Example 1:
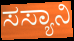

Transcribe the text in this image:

ಸಸ್ಯಾನಿ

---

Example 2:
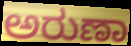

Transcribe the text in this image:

ಅರುಣಾ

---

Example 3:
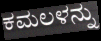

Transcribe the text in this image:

ಕಮಲಳನ್ನು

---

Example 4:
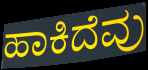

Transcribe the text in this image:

ಹಾಕಿದೆವು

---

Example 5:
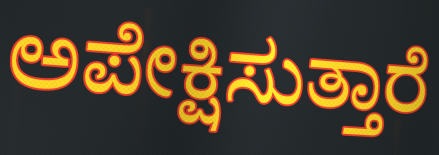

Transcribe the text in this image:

ಅಪೇಕ್ಷಿಸುತ್ತಾರೆ